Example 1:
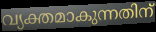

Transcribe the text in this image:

വ്യക്തമാകുന്നതിന്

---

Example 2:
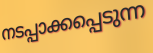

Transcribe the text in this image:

നടപ്പാക്കപ്പെടുന്ന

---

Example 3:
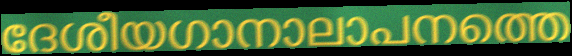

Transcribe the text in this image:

ദേശീയഗാനാലാപനത്തെ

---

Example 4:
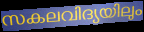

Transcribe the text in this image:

സകലവിദ്യയിലും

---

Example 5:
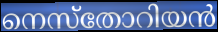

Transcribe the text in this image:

നെസ്തോറിയൻ